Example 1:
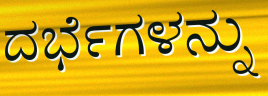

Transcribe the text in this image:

ದರ್ಭೆಗಳನ್ನು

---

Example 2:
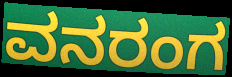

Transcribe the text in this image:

ವನರಂಗ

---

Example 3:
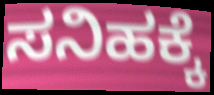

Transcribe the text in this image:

ಸನಿಹಕ್ಕೆ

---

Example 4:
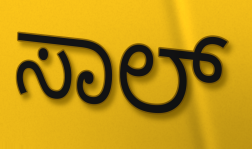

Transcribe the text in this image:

ಸಾಲ್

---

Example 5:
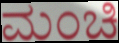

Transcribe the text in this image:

ಮಂಚಿ